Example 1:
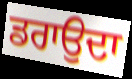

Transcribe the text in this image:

ਡਰਾਉਦਾ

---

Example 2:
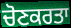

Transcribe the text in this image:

ਚੋਣਕਰਤਾ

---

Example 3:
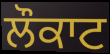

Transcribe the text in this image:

ਲੌਕਾਟ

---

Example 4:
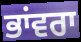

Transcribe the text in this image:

ਭਾਂਵਰਾ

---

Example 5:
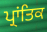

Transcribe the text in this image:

ਪ੍ਰਾਂਤਿਕ